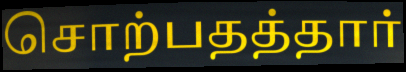
சொற்பதத்தார்